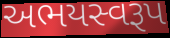
અભયસ્વરૂપ